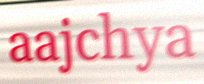
aajchya